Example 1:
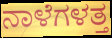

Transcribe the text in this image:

ನಾಳೆಗಳತ್ತ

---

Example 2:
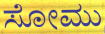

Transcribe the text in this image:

ಸೋಮು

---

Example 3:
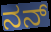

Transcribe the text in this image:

ನನ್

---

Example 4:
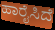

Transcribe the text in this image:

ಹಾರೈಸಿದೆ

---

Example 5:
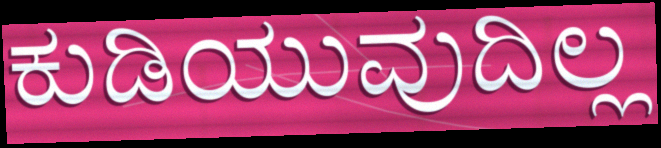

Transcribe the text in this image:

ಕುಡಿಯುವುದಿಲ್ಲ